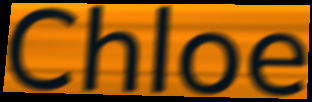
Chloe